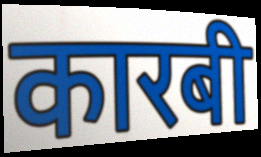
कारबी